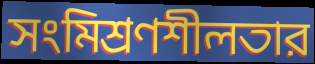
সংমিশ্রণশীলতার